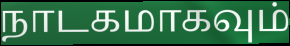
நாடகமாகவும்